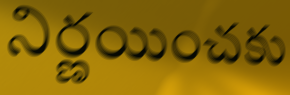
నిర్ణయించకు